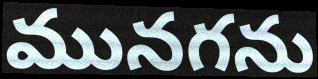
మునగను